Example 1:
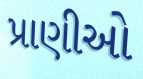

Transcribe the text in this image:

પ્રાણીઓ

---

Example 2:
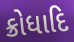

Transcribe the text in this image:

ક્રોધાદિ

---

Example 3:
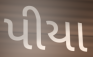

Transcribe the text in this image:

પીયા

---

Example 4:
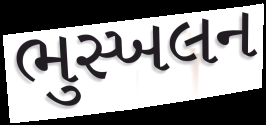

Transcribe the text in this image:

ભુસ્ખલન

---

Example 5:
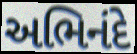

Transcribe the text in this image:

અભિનંદે